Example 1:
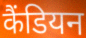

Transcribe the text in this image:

कैंडियन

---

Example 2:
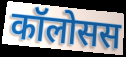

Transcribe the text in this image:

कॉलोसस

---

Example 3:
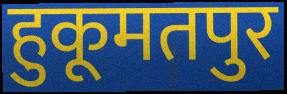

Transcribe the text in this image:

हुकूमतपुर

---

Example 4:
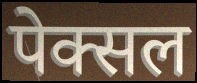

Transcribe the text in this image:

पेक्सल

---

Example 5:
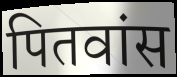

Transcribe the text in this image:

पितवांस